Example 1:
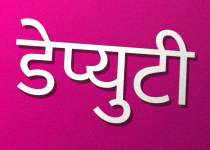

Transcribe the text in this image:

डेप्युटी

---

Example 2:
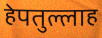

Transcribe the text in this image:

हेपतुल्लाह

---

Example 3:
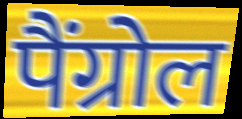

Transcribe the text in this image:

पैंग्रोल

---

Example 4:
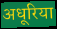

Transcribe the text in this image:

अधूरिया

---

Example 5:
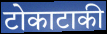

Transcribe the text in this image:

टोकाटाकी